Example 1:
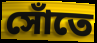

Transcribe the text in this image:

সোঁতে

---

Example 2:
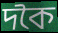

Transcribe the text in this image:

দকৈ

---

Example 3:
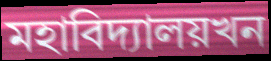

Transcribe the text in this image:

মহাবিদ্যালয়খন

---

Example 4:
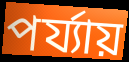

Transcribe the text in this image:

পৰ্য্যায়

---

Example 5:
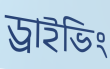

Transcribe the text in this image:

ড্ৰাইভিং